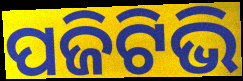
ପଜିଟିଭି